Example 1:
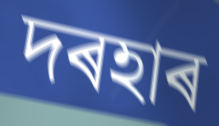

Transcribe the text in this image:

দৰহাৰ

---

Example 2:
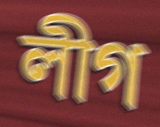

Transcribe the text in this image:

লীগ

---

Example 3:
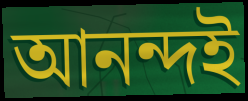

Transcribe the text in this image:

আনন্দই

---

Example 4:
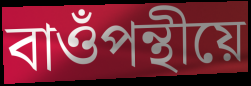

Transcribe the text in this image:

বাওঁপন্থীয়ে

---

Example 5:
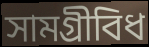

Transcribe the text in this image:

সামগ্ৰীবিধ